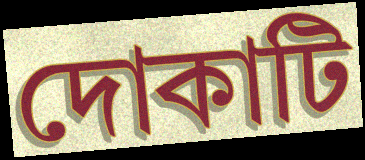
দোকাটি